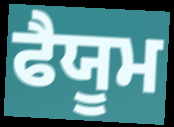
ਫੈਯੂਮ